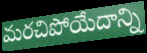
మరచిపోయేదాన్ని